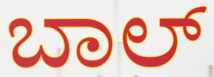
ಬಾಲ್